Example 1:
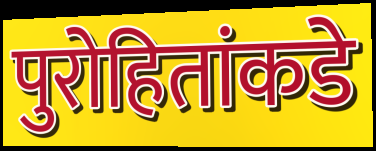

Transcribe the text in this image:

पुरोहितांकडे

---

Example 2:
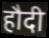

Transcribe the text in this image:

हौदी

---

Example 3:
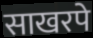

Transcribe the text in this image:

साखरपे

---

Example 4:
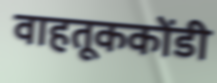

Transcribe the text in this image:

वाहतूककोंडी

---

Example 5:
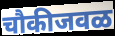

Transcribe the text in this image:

चौकीजवळ